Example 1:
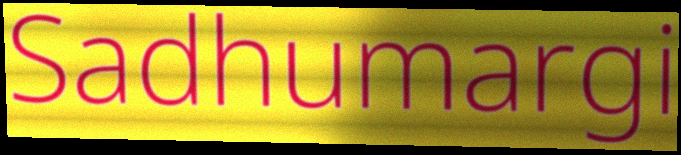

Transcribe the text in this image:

Sadhumargi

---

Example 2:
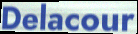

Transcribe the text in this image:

Delacour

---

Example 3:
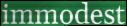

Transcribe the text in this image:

immodest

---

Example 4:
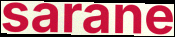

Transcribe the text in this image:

sarane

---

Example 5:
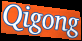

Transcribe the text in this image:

Qigong